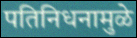
पतिनिधनामुळे